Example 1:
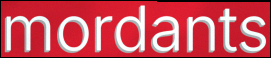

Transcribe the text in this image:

mordants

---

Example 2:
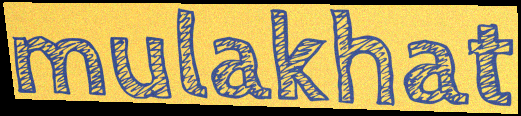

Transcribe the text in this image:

mulakhat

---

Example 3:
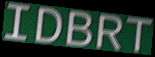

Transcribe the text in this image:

IDBRT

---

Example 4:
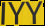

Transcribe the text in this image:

IYY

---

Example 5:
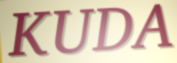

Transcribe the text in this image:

KUDA